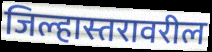
जिल्हास्तरावरील